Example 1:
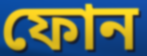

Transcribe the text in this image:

ফোন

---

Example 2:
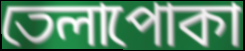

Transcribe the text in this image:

তেলাপোকা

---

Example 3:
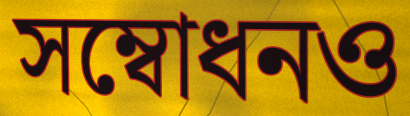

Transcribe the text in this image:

সম্বোধনও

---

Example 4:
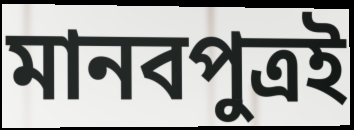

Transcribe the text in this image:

মানবপুত্রই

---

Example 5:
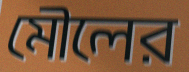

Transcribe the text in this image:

মৌলের